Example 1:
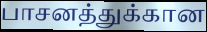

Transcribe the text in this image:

பாசனத்துக்கான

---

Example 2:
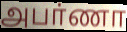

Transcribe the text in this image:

அபர்ணா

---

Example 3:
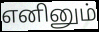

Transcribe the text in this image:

எனினும்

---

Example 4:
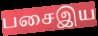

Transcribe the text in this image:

பசைஇய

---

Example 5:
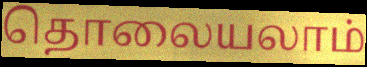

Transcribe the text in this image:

தொலையலாம்